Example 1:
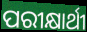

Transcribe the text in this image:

ପରୀକ୍ଷାର୍ଥୀ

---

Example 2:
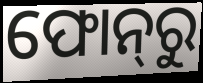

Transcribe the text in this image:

ଫୋନ୍‌ରୁ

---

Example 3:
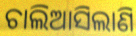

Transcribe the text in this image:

ଚାଲିଆସିଲାଣି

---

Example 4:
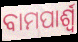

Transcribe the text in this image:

ବାମପାର୍ଶ୍ଵ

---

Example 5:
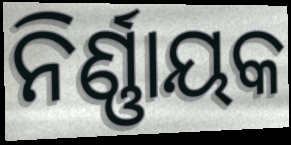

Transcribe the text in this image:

ନିର୍ଣ୍ଣାୟକ